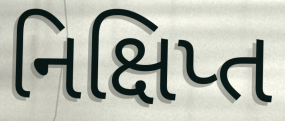
નિક્ષિપ્ત